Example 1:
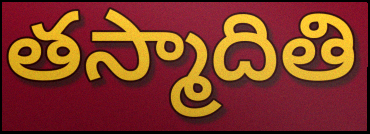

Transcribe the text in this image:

తస్మాదితి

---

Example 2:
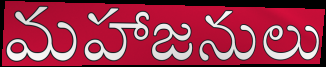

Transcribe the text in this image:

మహాజనులు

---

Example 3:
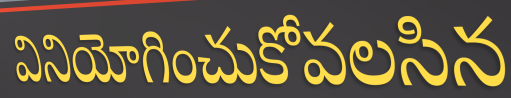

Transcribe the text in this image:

వినియోగించుకోవలసిన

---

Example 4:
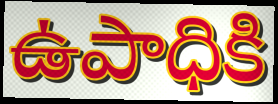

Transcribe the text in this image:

ఉపాధికి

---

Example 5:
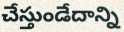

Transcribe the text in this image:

చేస్తుండేదాన్ని